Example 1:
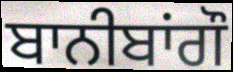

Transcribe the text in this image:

ਬਾਨੀਬਾਂਗੌ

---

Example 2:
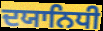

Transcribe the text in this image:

ਦਯਾਨਿਧੀ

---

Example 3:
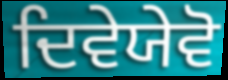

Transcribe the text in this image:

ਦਿਵੇਯੇਵੋ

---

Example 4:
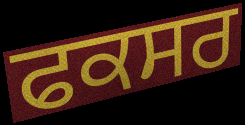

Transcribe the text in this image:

ਫਕਸਰ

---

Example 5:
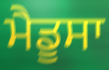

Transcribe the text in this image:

ਮੈਡੂਸਾ